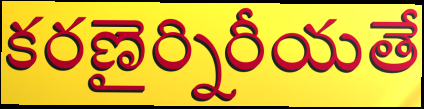
కరణైర్నిరీయతే